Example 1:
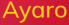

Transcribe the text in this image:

Ayaro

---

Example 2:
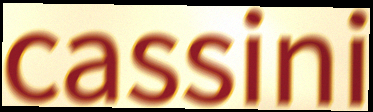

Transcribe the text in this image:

cassini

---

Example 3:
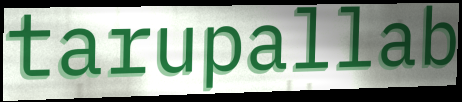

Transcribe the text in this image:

tarupallab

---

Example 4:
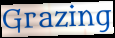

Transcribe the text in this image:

Grazing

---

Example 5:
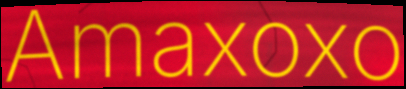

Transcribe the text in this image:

Amaxoxo